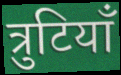
त्रुटियाँ